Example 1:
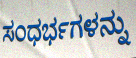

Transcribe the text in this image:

ಸಂಧರ್ಭಗಳನ್ನು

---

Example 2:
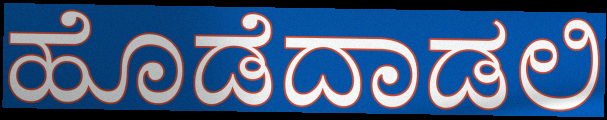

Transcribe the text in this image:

ಹೊಡೆದಾಡಲಿ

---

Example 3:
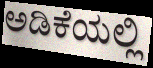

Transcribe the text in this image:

ಅಡಿಕೆಯಲ್ಲಿ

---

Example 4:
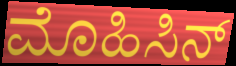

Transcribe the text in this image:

ಮೊಹಿಸಿನ್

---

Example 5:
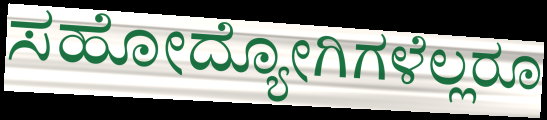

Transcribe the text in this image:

ಸಹೋದ್ಯೋಗಿಗಳೆಲ್ಲರೂ